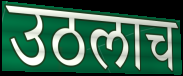
उठलाच